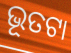
ଭୂତଟା